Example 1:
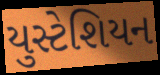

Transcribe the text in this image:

યુસ્ટેશિયન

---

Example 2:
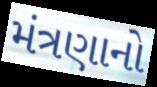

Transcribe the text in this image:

મંત્રણાનો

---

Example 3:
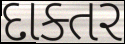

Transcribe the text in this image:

દાક્તર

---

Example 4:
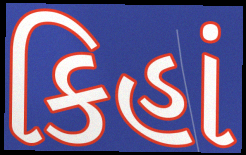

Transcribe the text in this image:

કિહાં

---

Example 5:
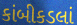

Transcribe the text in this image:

કાંબીકડલાં